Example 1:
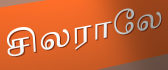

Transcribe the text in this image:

சிலராலே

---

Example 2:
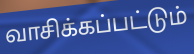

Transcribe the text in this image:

வாசிக்கப்பட்டும்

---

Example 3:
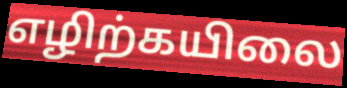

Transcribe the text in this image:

எழிற்கயிலை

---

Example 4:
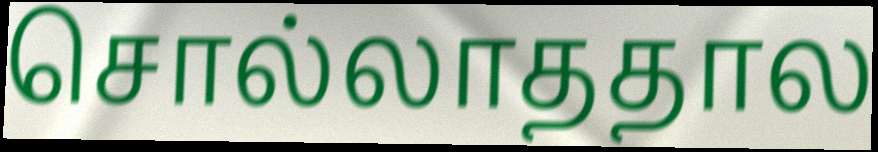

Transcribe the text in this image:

சொல்லாததால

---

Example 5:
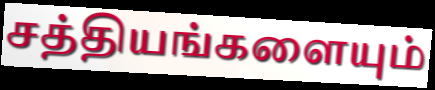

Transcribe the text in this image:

சத்தியங்களையும்